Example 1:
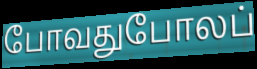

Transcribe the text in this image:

போவதுபோலப்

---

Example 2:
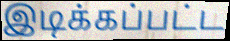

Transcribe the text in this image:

இடிக்கப்பட்ட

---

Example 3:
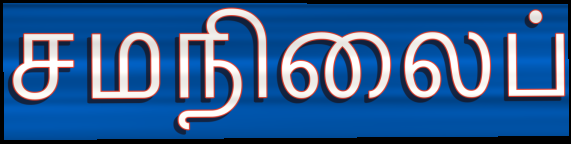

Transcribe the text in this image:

சமநிலைப்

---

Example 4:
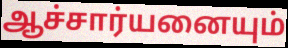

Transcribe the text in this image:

ஆச்சார்யனையும்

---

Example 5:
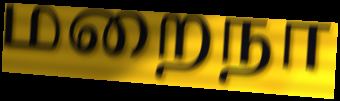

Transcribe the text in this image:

மறைநா